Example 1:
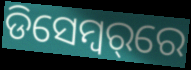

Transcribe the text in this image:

ଡିସେମ୍ବର୍‌ରେ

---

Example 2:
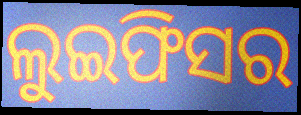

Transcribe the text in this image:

ଲୁଇଫିସର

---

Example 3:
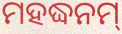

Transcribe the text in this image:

ମହଦ୍ଧନମ୍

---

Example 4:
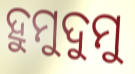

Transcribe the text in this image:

ହୁମୁଦୁମୁ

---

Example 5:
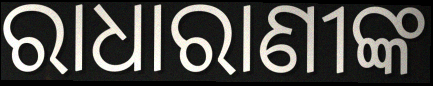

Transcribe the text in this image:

ରାଧାରାଣୀଙ୍କ